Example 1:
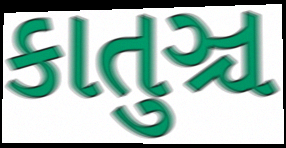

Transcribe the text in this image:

કાતુઞ્ચ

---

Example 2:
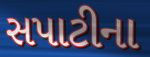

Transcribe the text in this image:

સપાટીના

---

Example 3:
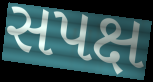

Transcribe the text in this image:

સપક્ષ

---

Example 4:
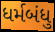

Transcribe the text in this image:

ધર્મબંધુ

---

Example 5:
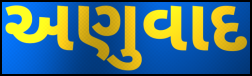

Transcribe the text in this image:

અણુવાદ